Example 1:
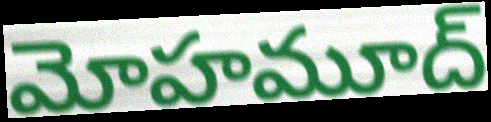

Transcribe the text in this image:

మోహమూద్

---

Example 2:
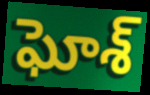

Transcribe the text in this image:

ఘోశ్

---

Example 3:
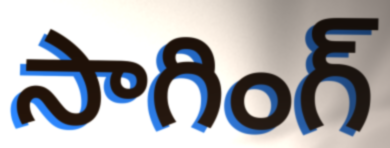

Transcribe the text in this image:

సాగింగ్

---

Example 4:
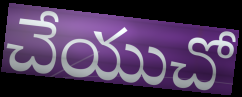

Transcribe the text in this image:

చేయుచో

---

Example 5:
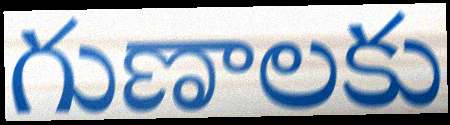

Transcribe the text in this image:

గుణాలకు